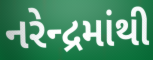
નરેન્દ્રમાંથી